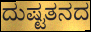
ದುಷ್ಟತನದ